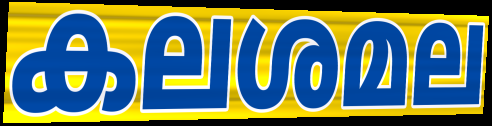
കലശമല